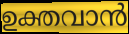
ഉക്തവാൻ